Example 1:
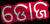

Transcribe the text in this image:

ଡୋଜ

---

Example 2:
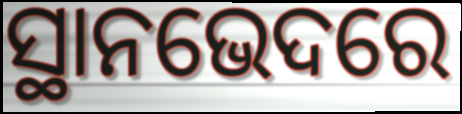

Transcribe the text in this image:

ସ୍ଥାନଭେଦରେ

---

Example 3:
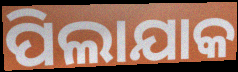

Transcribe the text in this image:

ପିଲାଯାକ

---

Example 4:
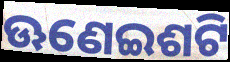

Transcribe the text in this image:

ଊଣେଇଶଟି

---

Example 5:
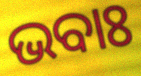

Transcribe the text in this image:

ଭବାଃ